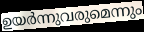
ഉയർന്നുവരുമെന്നും